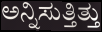
ಅನ್ನಿಸುತ್ತಿತ್ತು